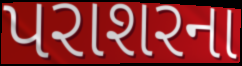
પરાશરના